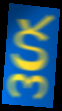
క్ల